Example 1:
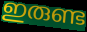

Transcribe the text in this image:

ഇരുണ്ട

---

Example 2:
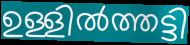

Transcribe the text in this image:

ഉള്ളിൽത്തട്ടി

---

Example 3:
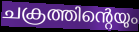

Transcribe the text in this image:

ചക്രത്തിന്റെയും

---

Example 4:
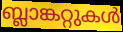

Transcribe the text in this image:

ബ്ലാങ്കറ്റുകൾ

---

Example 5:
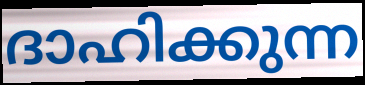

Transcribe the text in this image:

ദാഹിക്കുന്ന